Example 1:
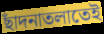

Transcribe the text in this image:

ছাঁদনাতলাতেই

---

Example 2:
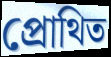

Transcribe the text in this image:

প্রোথিত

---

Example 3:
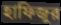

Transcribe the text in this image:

হাফিজুর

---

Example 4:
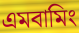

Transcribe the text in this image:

এমবামিং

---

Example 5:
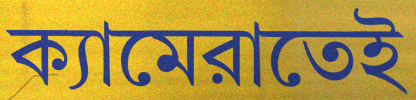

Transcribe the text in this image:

ক্যামেরাতেই